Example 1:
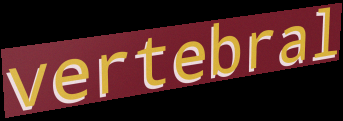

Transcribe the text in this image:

vertebral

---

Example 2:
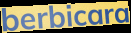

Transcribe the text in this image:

berbicara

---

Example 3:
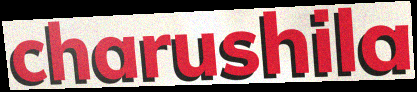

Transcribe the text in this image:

charushila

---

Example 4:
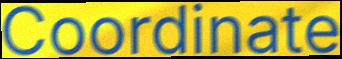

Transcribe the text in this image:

Coordinate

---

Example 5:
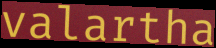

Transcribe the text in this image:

valartha